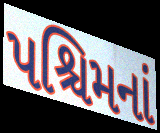
પશ્ચિમનાં